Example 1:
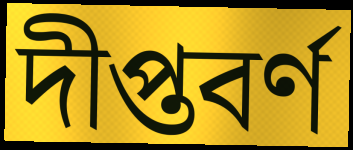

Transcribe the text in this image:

দীপ্তবর্ণ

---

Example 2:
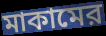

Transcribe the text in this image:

মাকামের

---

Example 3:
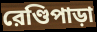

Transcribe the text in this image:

রেণ্ডিপাড়া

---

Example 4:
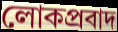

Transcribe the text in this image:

লোকপ্রবাদ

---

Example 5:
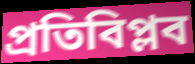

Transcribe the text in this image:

প্রতিবিপ্লব